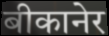
बीकानेर